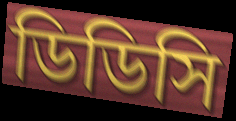
ডিডিসি